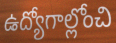
ఉద్యోగాల్లోంచి